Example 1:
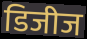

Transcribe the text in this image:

डिजीज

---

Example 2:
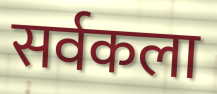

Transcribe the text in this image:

सर्वकला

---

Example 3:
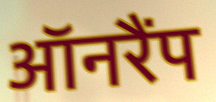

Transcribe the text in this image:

ऑनरैंप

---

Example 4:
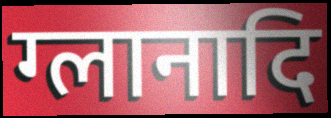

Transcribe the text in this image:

ग्लानादि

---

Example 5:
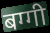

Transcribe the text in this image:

बग्गी